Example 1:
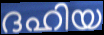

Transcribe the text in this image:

ദഹിയ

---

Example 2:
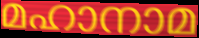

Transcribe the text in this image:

മഹാനാമ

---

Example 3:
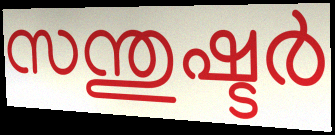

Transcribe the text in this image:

സന്തുഷ്ടർ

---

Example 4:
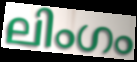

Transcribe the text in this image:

ലിംഗം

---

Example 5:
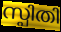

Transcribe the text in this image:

സ്പിതി